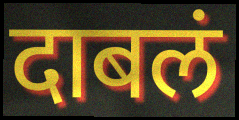
दाबलं